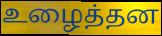
உழைத்தன